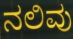
ನಲಿವು